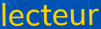
lecteur